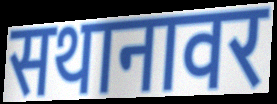
सथानावर